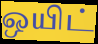
ஒயிட்